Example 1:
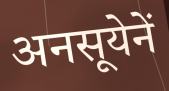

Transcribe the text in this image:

अनसूयेनें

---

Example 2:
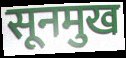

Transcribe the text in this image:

सूनमुख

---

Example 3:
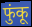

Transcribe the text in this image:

फुंकू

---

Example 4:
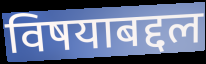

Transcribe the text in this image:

विषयाबद्दल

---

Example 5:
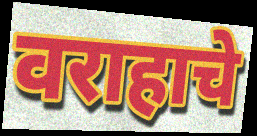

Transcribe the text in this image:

वराहाचे